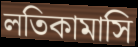
লতিকামাসি